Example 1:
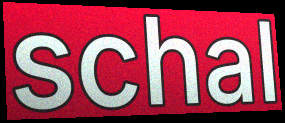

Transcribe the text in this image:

schal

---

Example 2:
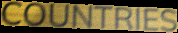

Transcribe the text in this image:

COUNTRIES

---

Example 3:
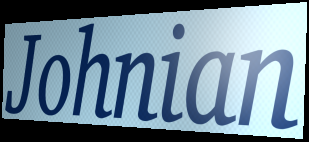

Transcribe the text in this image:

Johnian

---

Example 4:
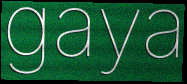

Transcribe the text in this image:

gaya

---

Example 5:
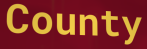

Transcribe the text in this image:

County